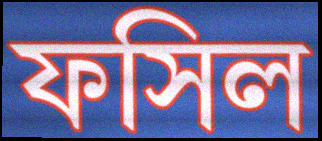
ফসিল